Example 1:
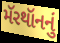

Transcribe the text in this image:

મૅરથૉનનું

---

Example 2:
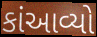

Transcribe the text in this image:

કાંઆવ્યો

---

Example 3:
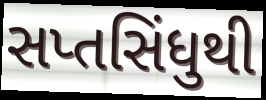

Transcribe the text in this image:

સપ્તસિંધુથી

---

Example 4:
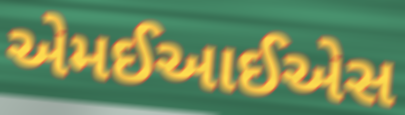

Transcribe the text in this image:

એમઈઆઈએસ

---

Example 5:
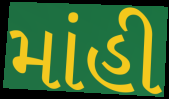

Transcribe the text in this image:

માંહી